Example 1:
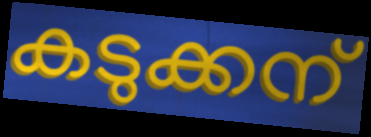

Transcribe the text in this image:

കടുക്കന്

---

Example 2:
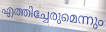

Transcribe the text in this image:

എത്തിച്ചേരുമെന്നും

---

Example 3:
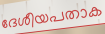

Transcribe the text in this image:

ദേശീയപതാക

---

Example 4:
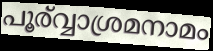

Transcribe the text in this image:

പൂര്വ്വാശ്രമനാമം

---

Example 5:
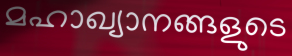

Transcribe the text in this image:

മഹാഖ്യാനങ്ങളുടെ